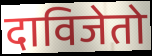
दाविजेतो